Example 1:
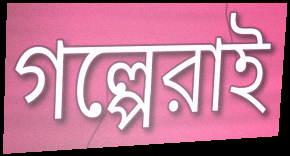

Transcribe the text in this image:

গল্পেরাই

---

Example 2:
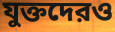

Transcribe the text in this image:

যুক্তদেরও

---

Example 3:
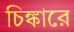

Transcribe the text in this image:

চিঙ্কারে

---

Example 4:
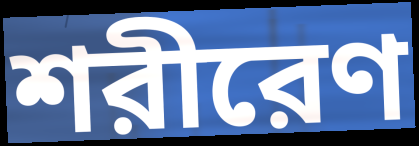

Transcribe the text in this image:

শরীরেণ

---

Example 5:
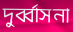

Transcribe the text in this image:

দুর্ব্বাসনা